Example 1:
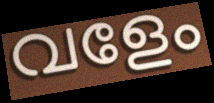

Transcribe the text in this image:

വളേം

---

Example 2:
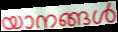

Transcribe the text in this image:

യാനങ്ങൾ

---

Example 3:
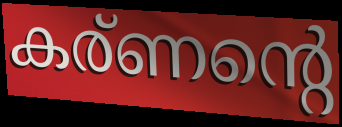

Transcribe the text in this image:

കര്ണന്റെ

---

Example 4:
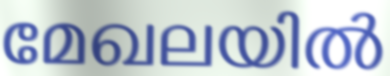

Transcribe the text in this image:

മേഖലയിൽ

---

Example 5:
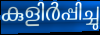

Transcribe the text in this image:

കുളിർപ്പിച്ചു